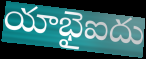
యాభైఐదు